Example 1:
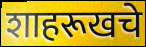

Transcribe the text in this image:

शाहरूखचे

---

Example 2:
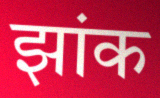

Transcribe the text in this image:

झांक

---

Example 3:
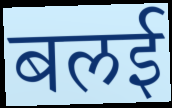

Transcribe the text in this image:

बलई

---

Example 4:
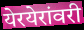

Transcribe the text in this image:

येरयेरांवरी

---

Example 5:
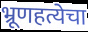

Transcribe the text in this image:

भ्रूणहत्येचा